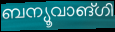
ബന്യൂവാങ്ഗി